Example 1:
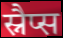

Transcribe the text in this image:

स्नैप्स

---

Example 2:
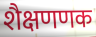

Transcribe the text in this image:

शैक्षणणक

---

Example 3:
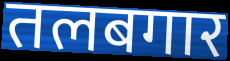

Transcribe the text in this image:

तलबगार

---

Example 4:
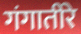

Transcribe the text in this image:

गंगातीरे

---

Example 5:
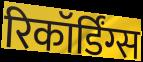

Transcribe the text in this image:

रिकॉर्डिंग्स